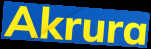
Akrura